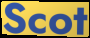
Scot